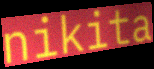
nikita